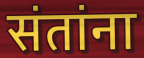
संतांना